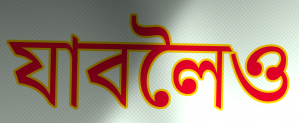
যাবলৈও